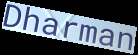
Dharman